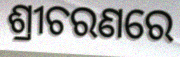
ଶ୍ରୀଚରଣରେ